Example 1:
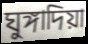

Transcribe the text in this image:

ঘুঙ্গাদিয়া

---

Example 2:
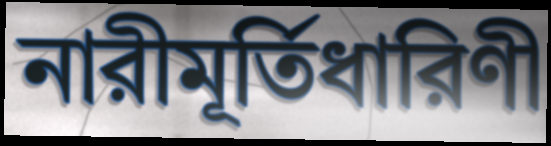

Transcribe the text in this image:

নারীমূর্তিধারিণী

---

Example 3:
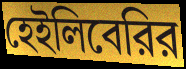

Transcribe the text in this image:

হেইলিবেরির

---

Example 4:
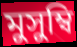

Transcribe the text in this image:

মুসুম্বি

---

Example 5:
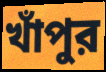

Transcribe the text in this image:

খাঁপুর